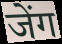
जेंग